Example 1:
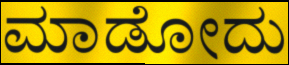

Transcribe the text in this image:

ಮಾಡೋದು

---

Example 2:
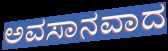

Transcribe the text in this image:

ಅವಸಾನವಾದ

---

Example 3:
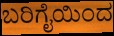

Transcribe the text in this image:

ಬರಿಗೈಯಿಂದ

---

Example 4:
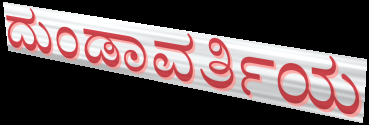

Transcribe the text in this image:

ದುಂಡಾವರ್ತಿಯ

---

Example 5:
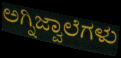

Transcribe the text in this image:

ಅಗ್ನಿಜ್ವಾಲೆಗಳು